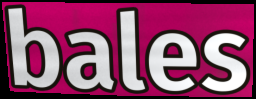
bales